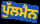
ਪੁੱਲਮੈਨ